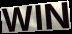
WIN